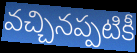
వచ్చినప్పటికీ